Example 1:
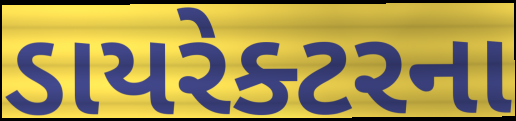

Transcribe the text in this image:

ડાયરેક્ટરના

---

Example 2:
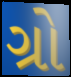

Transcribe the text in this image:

ગ્રો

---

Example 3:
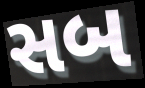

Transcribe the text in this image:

સબ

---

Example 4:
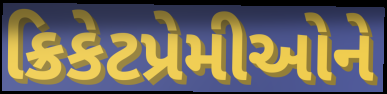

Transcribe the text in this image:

ક્રિકેટપ્રેમીઓને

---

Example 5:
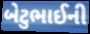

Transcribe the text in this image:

બેટુભાઈની